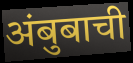
अंबुबाची